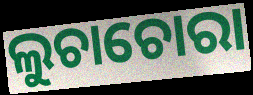
ଲୁଚାଚୋରା